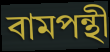
বামপন্থী